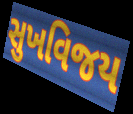
સુખવિજય